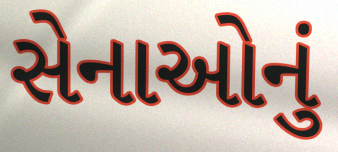
સેનાઓનું